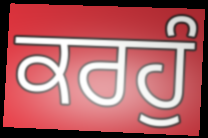
ਕਰਹੁੰ